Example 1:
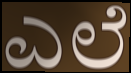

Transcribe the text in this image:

ಎಲೆ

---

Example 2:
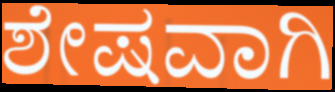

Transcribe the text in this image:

ಶೇಷವಾಗಿ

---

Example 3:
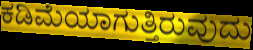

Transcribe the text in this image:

ಕಡಿಮೆಯಾಗುತ್ತಿರುವುದು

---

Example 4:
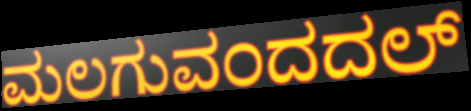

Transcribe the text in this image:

ಮಲಗುವಂದದಲ್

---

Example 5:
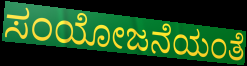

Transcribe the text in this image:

ಸಂಯೋಜನೆಯಂತೆ